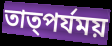
তাত্পর্যময়